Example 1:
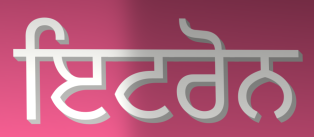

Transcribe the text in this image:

ਇਟਰੋਨ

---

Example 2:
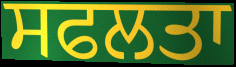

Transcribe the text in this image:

ਸਫਲਤਾ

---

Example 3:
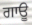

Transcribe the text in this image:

ਗਾਊ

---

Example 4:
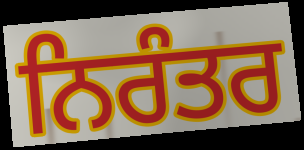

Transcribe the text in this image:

ਨਿਰੰਤਰ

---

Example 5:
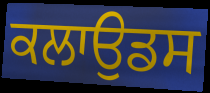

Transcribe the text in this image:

ਕਲਾਉਡਸ